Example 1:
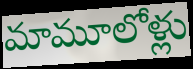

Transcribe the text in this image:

మామూలోళ్లు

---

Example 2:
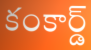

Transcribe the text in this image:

కంకార్డ్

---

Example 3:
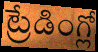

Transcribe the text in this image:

ట్రేడింగ్లో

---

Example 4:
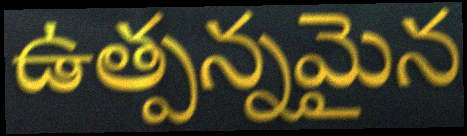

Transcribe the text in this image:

ఉత్పన్నమైన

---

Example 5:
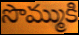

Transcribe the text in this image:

సొమ్ముకి